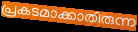
പ്രകടമാക്കാതിരുന്ന